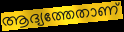
ആദ്യത്തേതാണ്